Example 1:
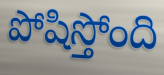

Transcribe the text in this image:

పోషిస్తోంది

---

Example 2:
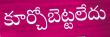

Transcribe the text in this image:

కూర్చోబెట్టలేదు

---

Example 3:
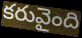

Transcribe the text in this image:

కరువైంది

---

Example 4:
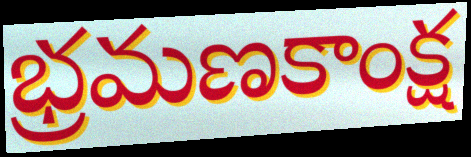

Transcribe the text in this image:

భ్రమణకాంక్ష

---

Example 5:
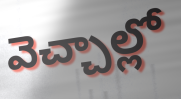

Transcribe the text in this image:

వెచ్చాల్లో